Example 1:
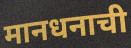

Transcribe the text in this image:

मानधनाची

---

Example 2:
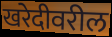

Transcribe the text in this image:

खरेदीवरील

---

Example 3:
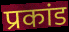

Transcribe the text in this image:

प्रकांड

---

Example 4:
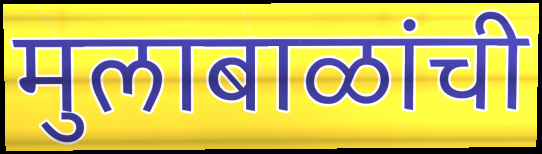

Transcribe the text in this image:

मुलाबाळांची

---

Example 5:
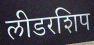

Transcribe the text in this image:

लीडरशिप